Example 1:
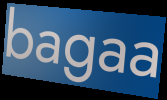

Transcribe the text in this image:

bagaa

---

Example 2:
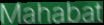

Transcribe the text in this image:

Mahabat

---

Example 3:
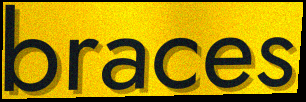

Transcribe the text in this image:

braces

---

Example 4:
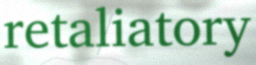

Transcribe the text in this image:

retaliatory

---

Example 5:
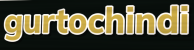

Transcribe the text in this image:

gurtochindi